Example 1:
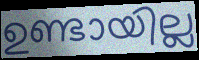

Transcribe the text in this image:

ഉണ്ടായില്ല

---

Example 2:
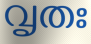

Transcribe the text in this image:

വൃതഃ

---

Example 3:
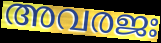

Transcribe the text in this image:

അവരജഃ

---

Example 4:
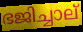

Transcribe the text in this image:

ഭജിച്ചാല്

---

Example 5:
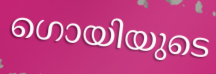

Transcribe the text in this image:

ഗൊയിയുടെ